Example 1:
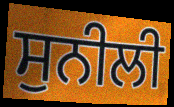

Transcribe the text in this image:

ਸੁਨੀਲੀ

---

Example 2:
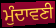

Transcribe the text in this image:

ਮੁੰਦਾਵਣੀ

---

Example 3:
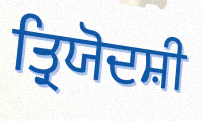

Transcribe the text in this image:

ਤ੍ਰਿਯੋਦਸ਼ੀ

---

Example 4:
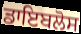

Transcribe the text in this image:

ਡਾਇਬਲੋਸ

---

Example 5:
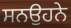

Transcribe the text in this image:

ਸਨਉਹਨੇ